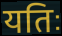
यतिः